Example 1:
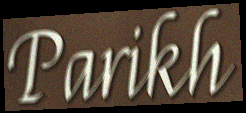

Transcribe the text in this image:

Parikh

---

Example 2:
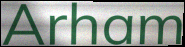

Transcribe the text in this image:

Arham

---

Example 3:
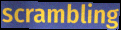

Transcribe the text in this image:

scrambling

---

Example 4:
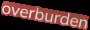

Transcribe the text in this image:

overburden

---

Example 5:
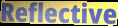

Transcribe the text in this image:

Reflective